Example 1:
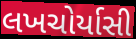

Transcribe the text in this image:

લખચોર્યાસી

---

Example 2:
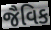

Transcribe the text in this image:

જૈવિક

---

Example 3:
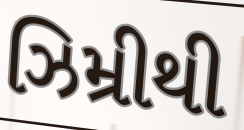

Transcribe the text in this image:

ઝિમ્રીથી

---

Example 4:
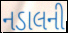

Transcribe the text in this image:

નડાલની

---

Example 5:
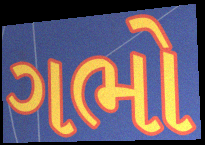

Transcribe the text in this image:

ગભો